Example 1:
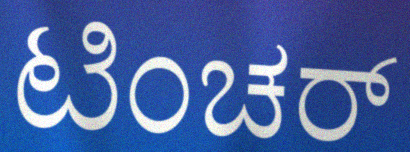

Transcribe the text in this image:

ಟಿಂಚರ್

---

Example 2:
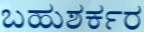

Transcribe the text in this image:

ಬಹುಶರ್ಕರ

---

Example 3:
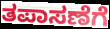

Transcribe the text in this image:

ತಪಾಸಣೆಗೆ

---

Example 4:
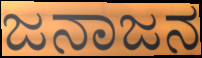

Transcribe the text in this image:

ಜನಾಜನ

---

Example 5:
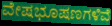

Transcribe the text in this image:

ವೇಷಭೂಷಣಗಳಿವೆ